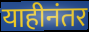
याहीनंतर